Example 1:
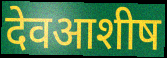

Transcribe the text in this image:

देवआशीष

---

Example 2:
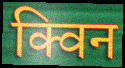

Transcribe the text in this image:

क्विन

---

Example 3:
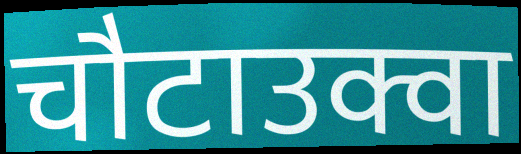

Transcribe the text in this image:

चौटाउक्वा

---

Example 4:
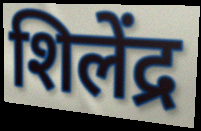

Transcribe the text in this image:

शिलेंद्र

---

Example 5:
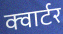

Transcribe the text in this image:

क्‍वार्टर